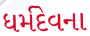
ધર્મદેવના